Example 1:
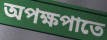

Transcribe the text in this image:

অপক্ষপাতে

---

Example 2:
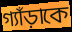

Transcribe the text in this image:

গ্যাঁড়াকে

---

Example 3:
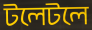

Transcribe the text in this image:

টলেটলে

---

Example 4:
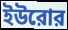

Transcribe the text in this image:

ইউরোর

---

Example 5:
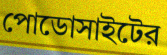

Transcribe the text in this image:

পোডোসাইটের